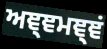
ਅਞ੍ਞਮਞ੍ਞਂ